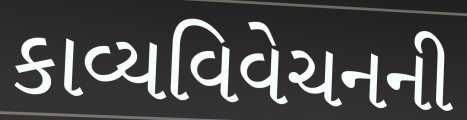
કાવ્યવિવેચનની